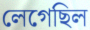
লেগেছিল